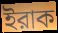
ইরাক